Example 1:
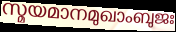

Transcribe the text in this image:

സ്മയമാനമുഖാംബുജഃ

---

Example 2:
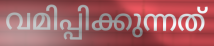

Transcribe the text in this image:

വമിപ്പിക്കുന്നത്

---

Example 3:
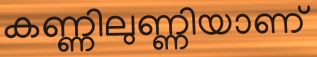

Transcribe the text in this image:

കണ്ണിലുണ്ണിയാണ്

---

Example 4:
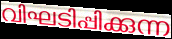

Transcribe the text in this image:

വിഘടിപ്പിക്കുന്ന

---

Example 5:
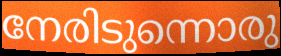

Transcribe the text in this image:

നേരിടുന്നൊരു